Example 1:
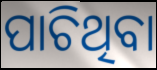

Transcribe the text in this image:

ପାଚିଥିବା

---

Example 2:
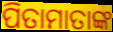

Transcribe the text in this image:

ପିତାମାତାଙ୍କ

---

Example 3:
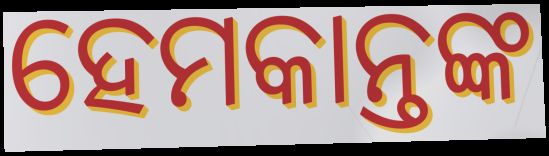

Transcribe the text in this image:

ହେମକାନ୍ତଙ୍କ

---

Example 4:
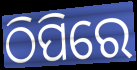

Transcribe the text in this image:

ଠିପିରେ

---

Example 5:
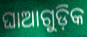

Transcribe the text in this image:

ଘାଆଗୁଡ଼ିକ